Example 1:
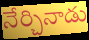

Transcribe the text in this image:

నేర్చినాడు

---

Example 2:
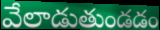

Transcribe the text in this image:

వేలాడుతుండడం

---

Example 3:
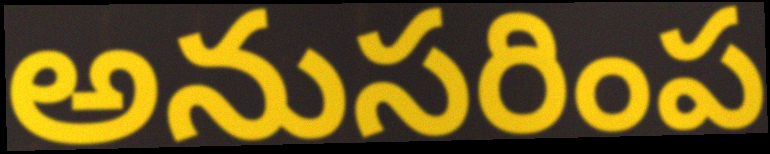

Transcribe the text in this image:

అనుసరింప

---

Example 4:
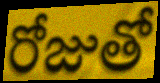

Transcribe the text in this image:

రోజుతో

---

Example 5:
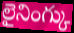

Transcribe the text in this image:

లైనింగ్కు